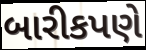
બારીકપણે